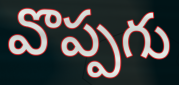
వొప్పగు